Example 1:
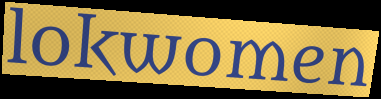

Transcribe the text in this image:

lokwomen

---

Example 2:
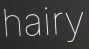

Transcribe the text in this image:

hairy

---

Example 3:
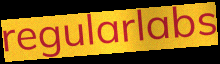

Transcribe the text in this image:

regularlabs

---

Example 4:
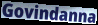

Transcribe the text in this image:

Govindanna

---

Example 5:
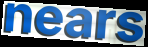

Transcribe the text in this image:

nears